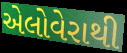
એલોવેરાથી